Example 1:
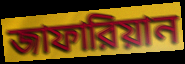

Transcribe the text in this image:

জাফারিয়ান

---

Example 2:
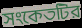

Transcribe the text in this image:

সংকেতটির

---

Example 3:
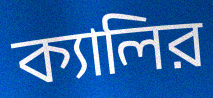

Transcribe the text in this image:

ক্যালির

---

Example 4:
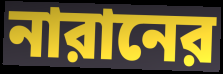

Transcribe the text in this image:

নারানের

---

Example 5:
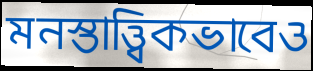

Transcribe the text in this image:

মনস্তাত্ত্বিকভাবেও